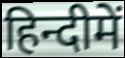
हिन्दीमें